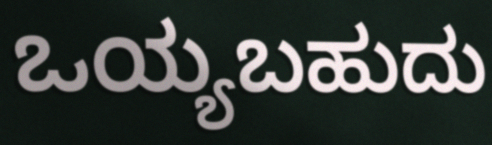
ಒಯ್ಯಬಹುದು